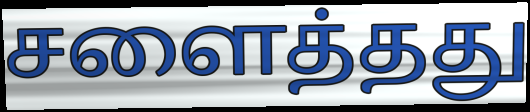
சளைத்தது